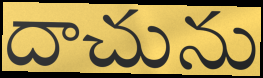
దాచును